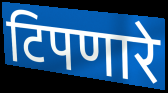
टिपणारे